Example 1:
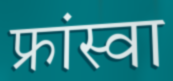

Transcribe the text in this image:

फ्रांस्वा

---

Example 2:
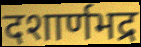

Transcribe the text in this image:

दशार्णभद्र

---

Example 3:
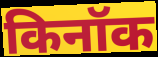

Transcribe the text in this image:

किनॉक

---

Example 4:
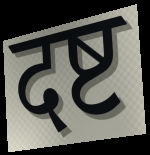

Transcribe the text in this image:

दष्ट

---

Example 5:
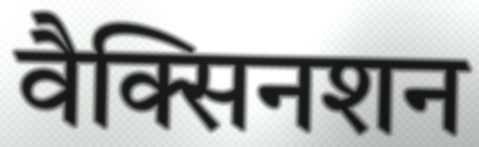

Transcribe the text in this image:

वैक्सिनशन